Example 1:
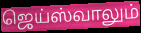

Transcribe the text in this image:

ஜெய்ஸ்வாலும்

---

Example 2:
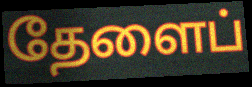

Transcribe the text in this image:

தேளைப்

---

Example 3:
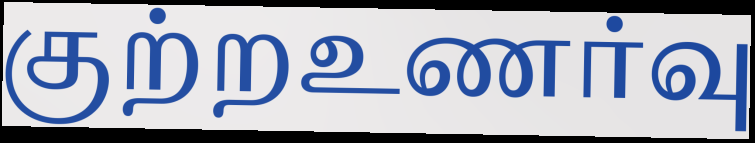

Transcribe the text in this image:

குற்றஉணர்வு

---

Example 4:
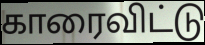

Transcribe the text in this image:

காரைவிட்டு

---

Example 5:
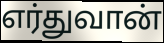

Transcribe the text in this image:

எர்துவான்